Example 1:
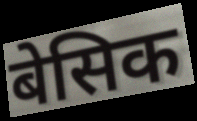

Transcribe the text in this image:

बेसिक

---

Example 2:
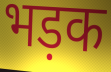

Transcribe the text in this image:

भड़क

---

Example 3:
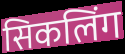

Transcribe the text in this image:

सिकलिंग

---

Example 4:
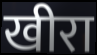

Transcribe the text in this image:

खीरा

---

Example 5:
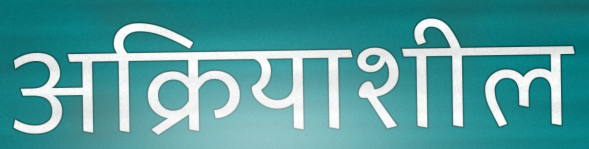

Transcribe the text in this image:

अक्रियाशील